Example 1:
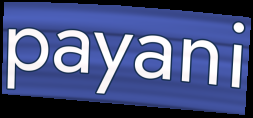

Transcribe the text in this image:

payani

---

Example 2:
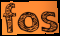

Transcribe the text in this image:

fos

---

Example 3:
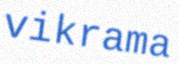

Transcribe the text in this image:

vikrama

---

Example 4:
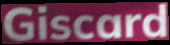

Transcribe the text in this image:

Giscard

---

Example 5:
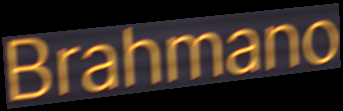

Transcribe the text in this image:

Brahmano